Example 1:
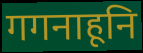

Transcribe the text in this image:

गगनाहूनि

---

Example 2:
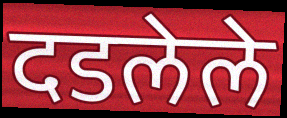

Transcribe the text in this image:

दडलेले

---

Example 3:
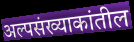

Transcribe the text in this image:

अल्पसंख्याकांतील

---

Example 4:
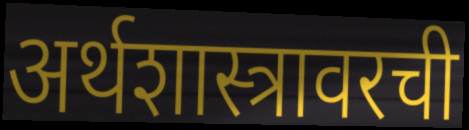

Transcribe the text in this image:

अर्थशास्त्रावरची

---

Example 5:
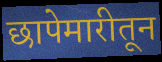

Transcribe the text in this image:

छापेमारीतून